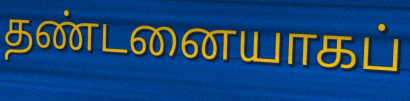
தண்டனையாகப்